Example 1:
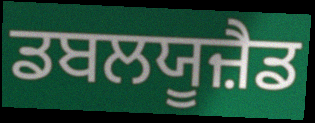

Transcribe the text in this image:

ਡਬਲਯੂਜ਼ੈਡ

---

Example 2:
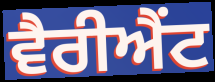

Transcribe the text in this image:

ਵੈਰੀਐਂਟ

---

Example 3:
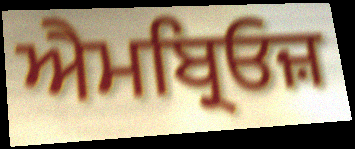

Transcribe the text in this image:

ਐਮਬ੍ਰਿਓਜ਼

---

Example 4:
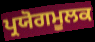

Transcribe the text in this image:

ਪ੍ਰਯੋਗਮੂਲਕ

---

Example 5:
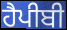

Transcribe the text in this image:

ਹੈਪੀਬੀ